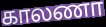
காலணா